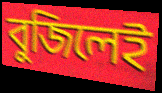
বুজিলেই